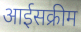
आईसक्रीम